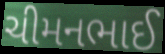
ચીમનભાઈ